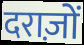
दराज़ों